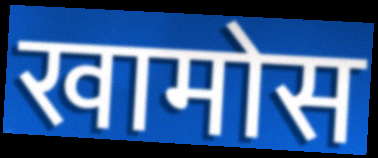
खामोस